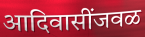
आदिवासींजवळ